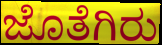
ಜೊತೆಗಿರು